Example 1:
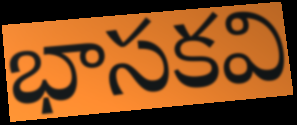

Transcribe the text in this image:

భాసకవి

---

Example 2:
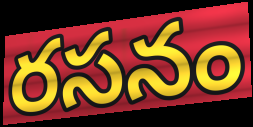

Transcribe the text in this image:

రసనం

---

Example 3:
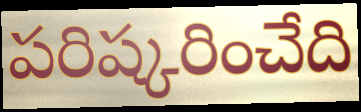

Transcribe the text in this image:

పరిష్కరించేది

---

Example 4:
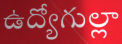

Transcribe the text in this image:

ఉద్యోగుల్లా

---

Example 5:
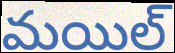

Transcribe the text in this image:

మయిల్